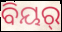
ବିୟର୍